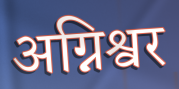
अग्निश्वर